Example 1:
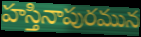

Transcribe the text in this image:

హస్తినాపురమున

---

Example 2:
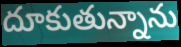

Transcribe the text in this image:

దూకుతున్నాను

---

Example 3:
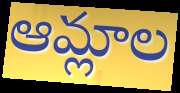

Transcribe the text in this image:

ఆమ్లాల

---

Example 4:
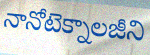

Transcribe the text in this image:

నానోటెక్నాలజీని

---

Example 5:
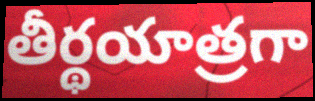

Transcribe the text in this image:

తీర్థయాత్రగా